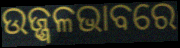
ଉଜ୍ଜ୍ୱଳଭାବରେ